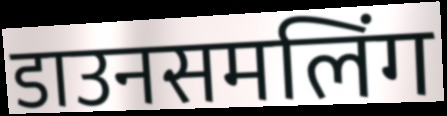
डाउनसमलिंग